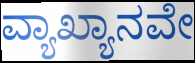
ವ್ಯಾಖ್ಯಾನವೇ